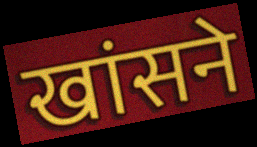
खांसने